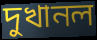
দুখানল